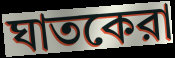
ঘাতকেরা